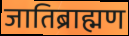
जातिब्राह्मण